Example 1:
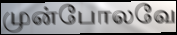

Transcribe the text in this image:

முன்போலவே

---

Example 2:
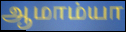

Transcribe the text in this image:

ஆமாம்யா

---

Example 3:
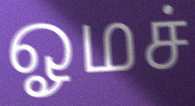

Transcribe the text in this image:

ஓமச்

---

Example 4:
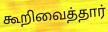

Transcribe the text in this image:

கூறிவைத்தார்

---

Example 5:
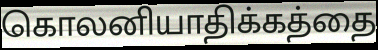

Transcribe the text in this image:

கொலனியாதிக்கத்தை